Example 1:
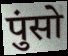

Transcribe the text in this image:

पुंसो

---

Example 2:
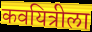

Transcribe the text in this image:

कवयित्रीला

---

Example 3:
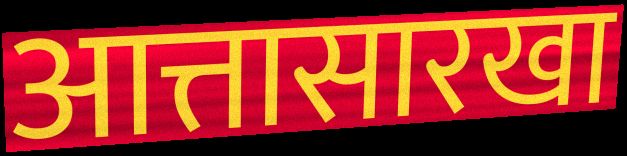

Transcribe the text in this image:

आत्तासारखा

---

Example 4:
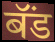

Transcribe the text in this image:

बॅंड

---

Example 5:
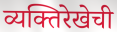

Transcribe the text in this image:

व्यक्तिरेखेची